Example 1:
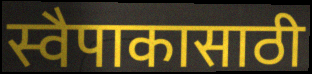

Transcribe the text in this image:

स्वैपाकासाठी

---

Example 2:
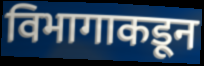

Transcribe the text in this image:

विभागाकडून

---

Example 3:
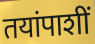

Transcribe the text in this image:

तयांपाशीं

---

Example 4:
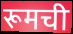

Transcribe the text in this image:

रूमची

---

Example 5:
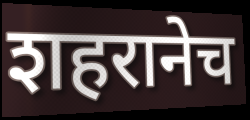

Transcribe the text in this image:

शहरानेच